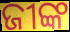
ଜୀଙ୍କ